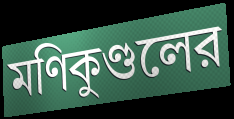
মণিকুণ্ডলের